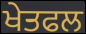
ਖੇਤਫਲ